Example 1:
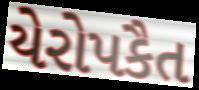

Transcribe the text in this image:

યેરોપકૈત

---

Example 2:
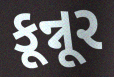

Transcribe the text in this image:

કૂન્નૂર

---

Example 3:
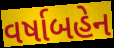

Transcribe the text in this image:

વર્ષાબહેન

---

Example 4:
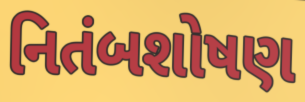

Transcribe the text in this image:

નિતંબશોષણ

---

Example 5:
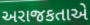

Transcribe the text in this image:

અરાજકતાએ